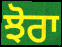
ਝੋਰਾ